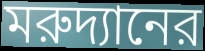
মরুদ্যানের